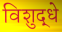
विशुद्धे